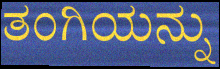
ತಂಗಿಯನ್ನು